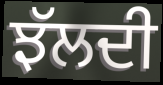
ਝੱਲਦੀ